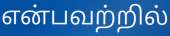
என்பவற்றில்